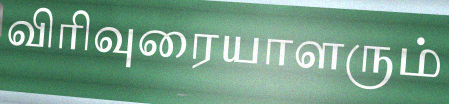
விரிவுரையாளரும்